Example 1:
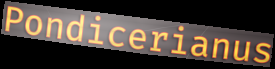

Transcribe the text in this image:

Pondicerianus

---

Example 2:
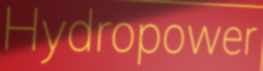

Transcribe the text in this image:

Hydropower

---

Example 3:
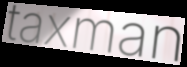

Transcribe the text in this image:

taxman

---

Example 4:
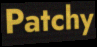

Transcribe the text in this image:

Patchy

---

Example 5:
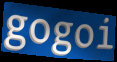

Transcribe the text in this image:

gogoi